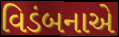
વિડંબનાએ